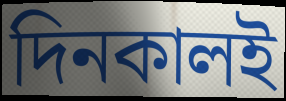
দিনকালই